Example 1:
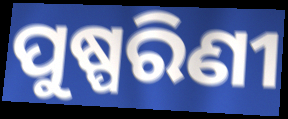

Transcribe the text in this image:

ପୁଷ୍ପରିଣୀ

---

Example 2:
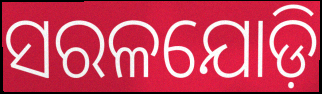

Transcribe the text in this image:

ସରଳଯୋଡ଼ି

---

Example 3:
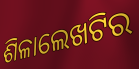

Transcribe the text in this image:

ଶିଳାଲେଖଟିର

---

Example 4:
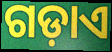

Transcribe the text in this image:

ଗଡ଼ାଏ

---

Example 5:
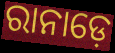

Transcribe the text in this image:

ରାନାଡ଼େ